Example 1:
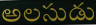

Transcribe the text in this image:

అలసుడు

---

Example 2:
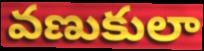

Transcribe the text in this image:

వణుకులా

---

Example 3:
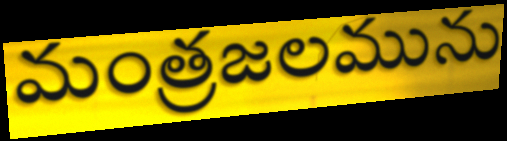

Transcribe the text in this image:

మంత్రజలమును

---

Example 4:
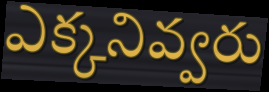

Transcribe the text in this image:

ఎక్కనివ్వరు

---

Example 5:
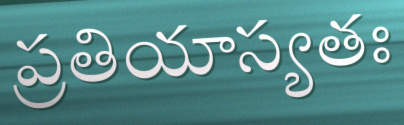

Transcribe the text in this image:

ప్రతియాస్యతః